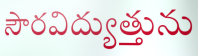
సౌరవిద్యుత్తును